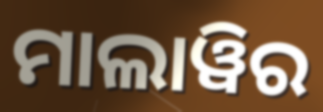
ମାଲାୱିର